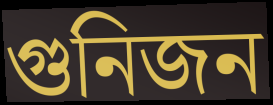
গুনিজন